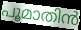
പൂമാതിൻ